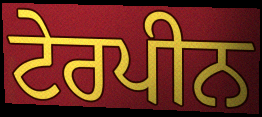
ਟੇਰਪੀਨ